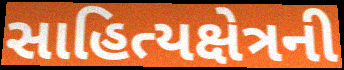
સાહિત્યક્ષેત્રની